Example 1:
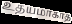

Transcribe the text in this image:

உதயமாகாத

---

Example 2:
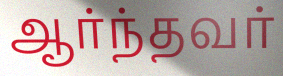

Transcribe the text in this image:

ஆர்ந்தவர்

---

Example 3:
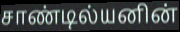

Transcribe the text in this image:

சாண்டில்யனின்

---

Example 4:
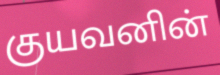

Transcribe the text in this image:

குயவனின்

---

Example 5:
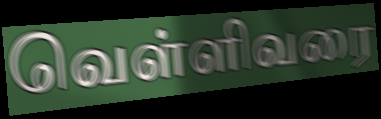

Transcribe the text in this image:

வெள்ளிவரை